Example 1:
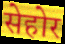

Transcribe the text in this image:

सेहोर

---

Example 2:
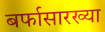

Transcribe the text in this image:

बर्फासारख्या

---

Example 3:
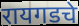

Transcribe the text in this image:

रायगडचे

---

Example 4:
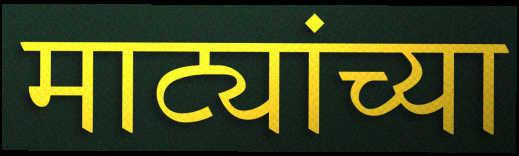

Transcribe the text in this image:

माट्यांच्या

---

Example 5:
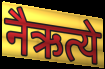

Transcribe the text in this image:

नैऋत्ये